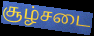
சூழ்சடை